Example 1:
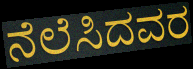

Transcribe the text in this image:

ನೆಲೆಸಿದವರ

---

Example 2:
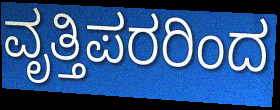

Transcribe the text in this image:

ವೃತ್ತಿಪರರಿಂದ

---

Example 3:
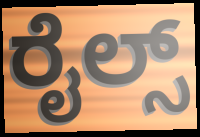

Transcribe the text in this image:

ರೈಲ್ಸ್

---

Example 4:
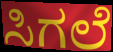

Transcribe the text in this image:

ಸಿಗಲೆ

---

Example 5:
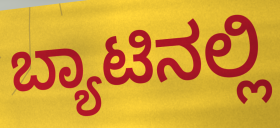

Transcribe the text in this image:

ಬ್ಯಾಟಿನಲ್ಲಿ